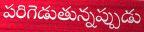
పరిగెడుతున్నప్పుడు